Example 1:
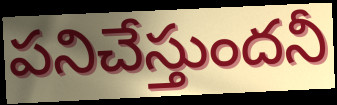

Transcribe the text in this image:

పనిచేస్తుందనీ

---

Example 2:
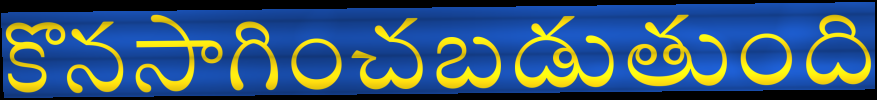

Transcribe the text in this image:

కొనసాగించబడుతుంది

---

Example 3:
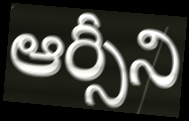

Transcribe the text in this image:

ఆర్సీని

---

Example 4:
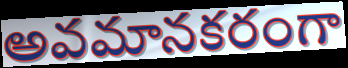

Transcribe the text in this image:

అవమానకరంగా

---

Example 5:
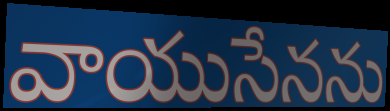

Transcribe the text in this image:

వాయుసేనను